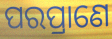
ପରପ୍ରାଣେ